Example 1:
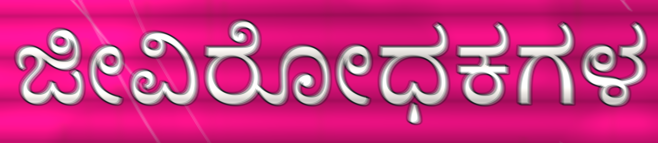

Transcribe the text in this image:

ಜೀವಿರೋಧಕಗಳ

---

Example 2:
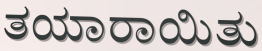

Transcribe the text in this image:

ತಯಾರಾಯಿತು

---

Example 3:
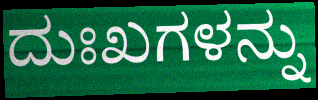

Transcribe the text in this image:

ದುಃಖಗಳನ್ನು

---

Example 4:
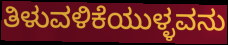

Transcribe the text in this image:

ತಿಳುವಳಿಕೆಯುಳ್ಳವನು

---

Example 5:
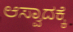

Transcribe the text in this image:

ಆಸ್ವಾದಕ್ಕೆ